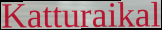
Katturaikal